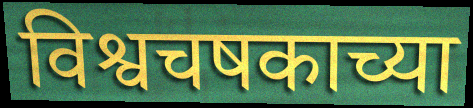
विश्वचषकाच्या